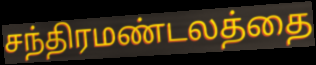
சந்திரமண்டலத்தை